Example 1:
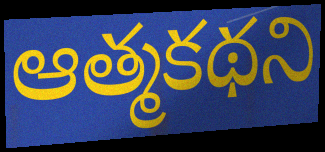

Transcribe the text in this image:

ఆత్మకథని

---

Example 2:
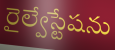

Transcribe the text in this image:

రైల్వేస్టేషను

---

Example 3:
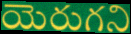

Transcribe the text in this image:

యెరుగని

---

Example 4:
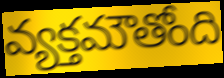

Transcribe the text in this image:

వ్యక్తమౌతోంది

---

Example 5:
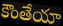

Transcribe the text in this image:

కౌంతేయా